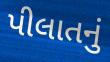
પીલાતનું